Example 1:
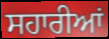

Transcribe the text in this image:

ਸਹਾਰੀਆਂ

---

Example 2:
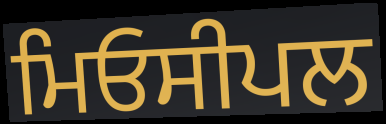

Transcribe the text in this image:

ਮਿਓਸੀਪਲ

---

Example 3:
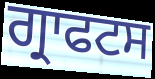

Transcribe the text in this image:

ਗ੍ਰਾਫਟਸ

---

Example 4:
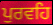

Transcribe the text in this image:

ਪੁਰਵਹਿ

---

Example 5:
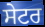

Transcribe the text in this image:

ਸੇਟਰ